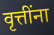
वृत्तींना